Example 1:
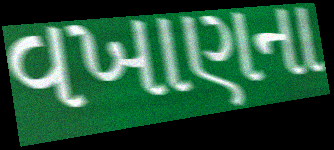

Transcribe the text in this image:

વખાણના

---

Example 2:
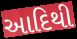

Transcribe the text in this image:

આદિથી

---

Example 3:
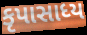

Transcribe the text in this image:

કૃપાસાધ્ય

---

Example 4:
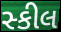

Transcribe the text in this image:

સ્કીલ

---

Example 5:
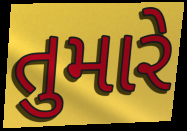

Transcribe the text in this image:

તુમારે